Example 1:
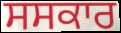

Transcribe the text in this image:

ਸਸਕਾਰ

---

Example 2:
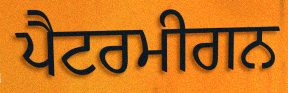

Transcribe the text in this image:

ਪੈਟਰਮੀਗਨ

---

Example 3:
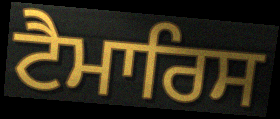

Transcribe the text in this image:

ਟੈਮਾਰਿਸ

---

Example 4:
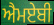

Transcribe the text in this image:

ਐਮਏਬੀ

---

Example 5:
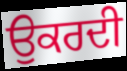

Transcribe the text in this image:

ਉਕਰਦੀ